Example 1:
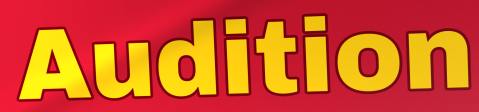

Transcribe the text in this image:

Audition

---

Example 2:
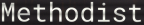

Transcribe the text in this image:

Methodist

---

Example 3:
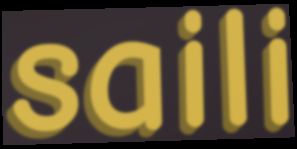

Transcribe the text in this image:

saili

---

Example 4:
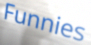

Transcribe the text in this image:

Funnies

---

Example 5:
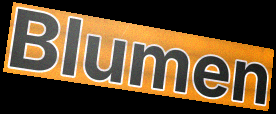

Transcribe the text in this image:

Blumen